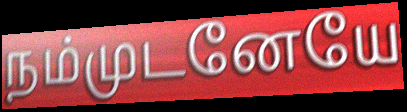
நம்முடனேயே